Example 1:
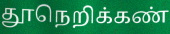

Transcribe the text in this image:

தூநெறிக்கண்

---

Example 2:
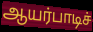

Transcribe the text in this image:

ஆயர்பாடிச்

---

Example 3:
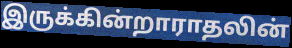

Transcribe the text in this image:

இருக்கின்றாராதலின்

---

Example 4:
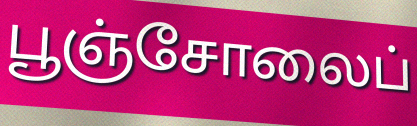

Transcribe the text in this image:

பூஞ்சோலைப்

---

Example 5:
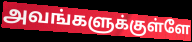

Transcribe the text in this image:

அவங்களுக்குள்ளே